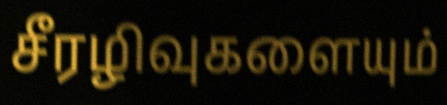
சீரழிவுகளையும்